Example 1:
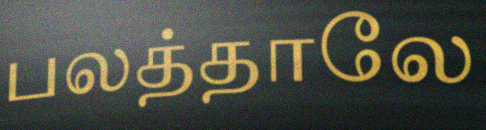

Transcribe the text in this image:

பலத்தாலே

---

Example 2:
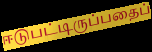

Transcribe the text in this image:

ஈடுபட்டிருப்பதைப்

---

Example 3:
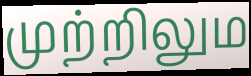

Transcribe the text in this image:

முற்றிலும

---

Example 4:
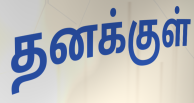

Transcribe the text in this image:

தனக்குள்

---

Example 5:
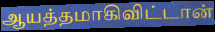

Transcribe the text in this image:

ஆயத்தமாகிவிட்டான்